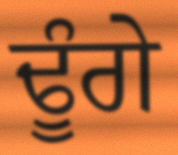
ਢੂੰਗੇ